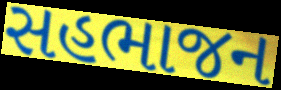
સહભાજન